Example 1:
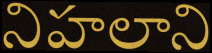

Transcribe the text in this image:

నిహలాని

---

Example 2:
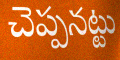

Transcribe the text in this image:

చెప్పనట్టు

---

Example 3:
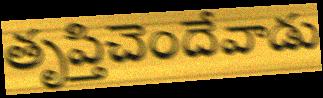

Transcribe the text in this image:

తృప్తిచెందేవాడు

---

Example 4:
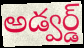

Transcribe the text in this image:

అడ్వర్డ్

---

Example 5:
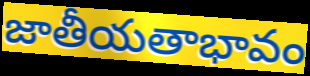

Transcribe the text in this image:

జాతీయతాభావం